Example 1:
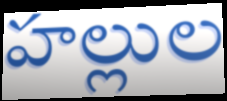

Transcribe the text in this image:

హల్లుల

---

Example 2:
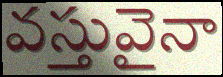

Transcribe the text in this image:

వస్తువైనా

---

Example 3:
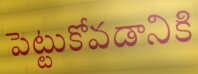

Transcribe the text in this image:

పెట్టుకోవడానికి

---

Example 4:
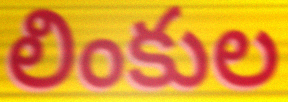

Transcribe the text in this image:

లింకుల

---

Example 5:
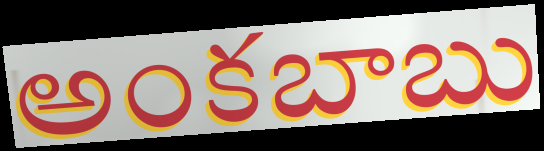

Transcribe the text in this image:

అంకబాబు